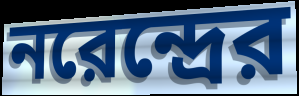
নরেন্দ্রের